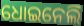
ଧୋଇନେଲି